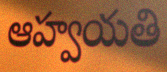
ఆహ్వయతి